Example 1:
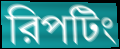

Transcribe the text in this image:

রিপটিং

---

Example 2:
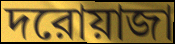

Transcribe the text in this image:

দরোয়াজা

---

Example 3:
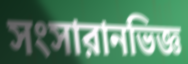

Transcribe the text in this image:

সংসারানভিজ্ঞ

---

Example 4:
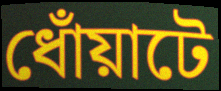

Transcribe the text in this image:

ধোঁয়াটে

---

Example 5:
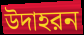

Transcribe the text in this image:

উদাহরন